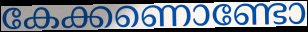
കേക്കണൊണ്ടോ